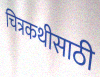
चित्रकथीसाठी